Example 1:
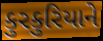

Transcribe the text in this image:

કુરકુરિયાને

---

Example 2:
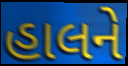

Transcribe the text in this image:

હાલને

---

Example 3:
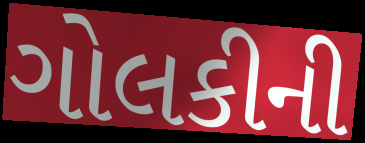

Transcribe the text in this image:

ગોલકીની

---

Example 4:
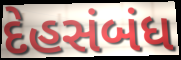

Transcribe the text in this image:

દેહસંબંધ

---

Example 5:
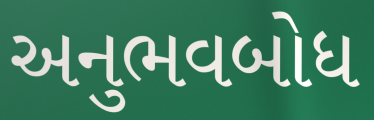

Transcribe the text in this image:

અનુભવબોધ